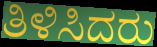
ತಿಳಿಸಿದರು